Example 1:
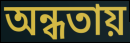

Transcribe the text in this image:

অন্ধতায়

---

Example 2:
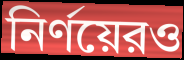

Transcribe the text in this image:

নির্ণয়েরও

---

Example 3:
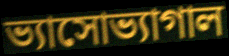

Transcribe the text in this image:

ভ্যাসোভ্যাগাল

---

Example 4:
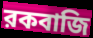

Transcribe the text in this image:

রকবাজি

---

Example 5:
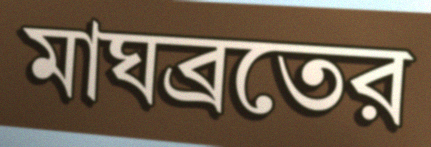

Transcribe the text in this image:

মাঘব্রতের